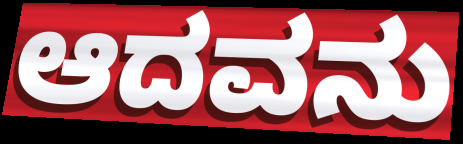
ಆದವನು